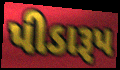
પીડારૂપ